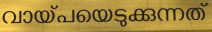
വായ്പയെടുക്കുന്നത്